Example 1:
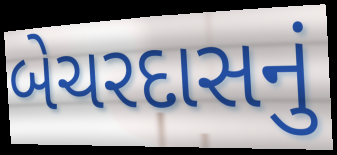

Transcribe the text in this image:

બેચરદાસનું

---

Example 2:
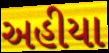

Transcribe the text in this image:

અહીયા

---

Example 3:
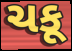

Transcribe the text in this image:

ચકૂ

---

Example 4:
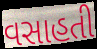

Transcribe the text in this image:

વસાહતી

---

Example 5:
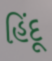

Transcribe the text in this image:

હિંદૂ